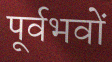
पूर्वभवों